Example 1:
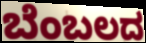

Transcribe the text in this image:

ಬೆಂಬಲದ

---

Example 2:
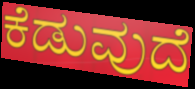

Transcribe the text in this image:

ಕೆಡುವುದೆ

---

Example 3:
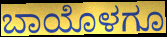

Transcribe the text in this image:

ಬಾಯೊಳಗೂ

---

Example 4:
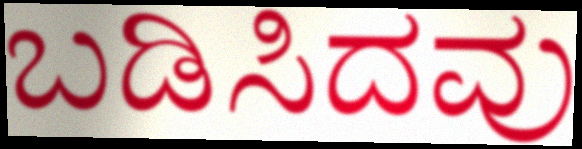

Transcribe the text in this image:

ಬಡಿಸಿದವು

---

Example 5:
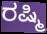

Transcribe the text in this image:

ರಷ್ಮಿ